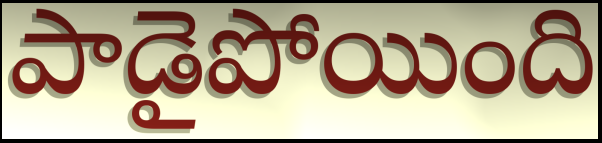
పాడైపోయింది